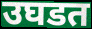
उघडत